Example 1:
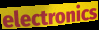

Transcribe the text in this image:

electronics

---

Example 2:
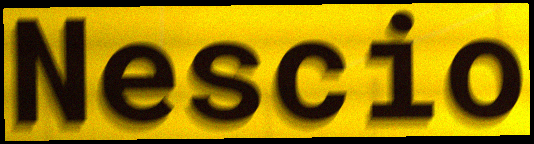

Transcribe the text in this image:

Nescio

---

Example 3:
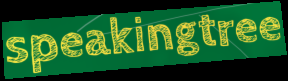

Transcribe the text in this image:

speakingtree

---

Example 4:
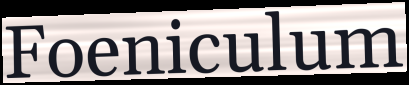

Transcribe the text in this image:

Foeniculum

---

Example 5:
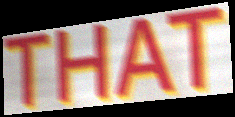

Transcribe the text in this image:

THAT